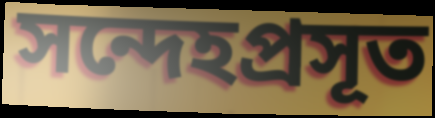
সন্দেহপ্রসূত